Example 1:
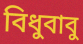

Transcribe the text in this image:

বিধুবাবু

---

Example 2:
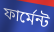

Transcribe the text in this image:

ফার্মেন্ট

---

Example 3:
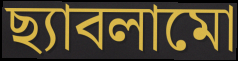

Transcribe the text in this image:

ছ্যাবলামো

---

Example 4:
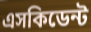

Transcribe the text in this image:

এসকিডেন্ট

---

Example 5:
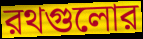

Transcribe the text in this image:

রথগুলোর